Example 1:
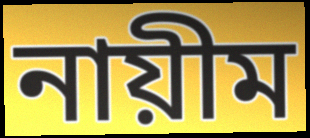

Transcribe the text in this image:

নায়ীম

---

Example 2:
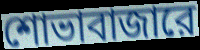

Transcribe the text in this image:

শোভাবাজারে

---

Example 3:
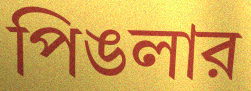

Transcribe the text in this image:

পিঙলার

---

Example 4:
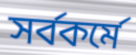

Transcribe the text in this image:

সর্বকর্মে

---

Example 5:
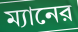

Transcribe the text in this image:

ম্যানের